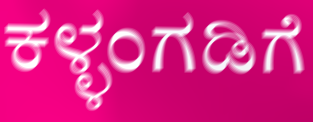
ಕಳ್ಳಂಗಡಿಗೆ